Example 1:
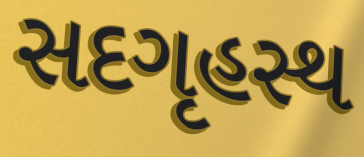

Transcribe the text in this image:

સદગૃહસ્થ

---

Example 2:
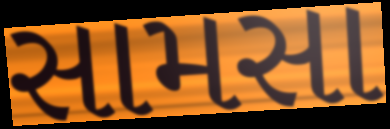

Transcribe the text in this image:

સામસા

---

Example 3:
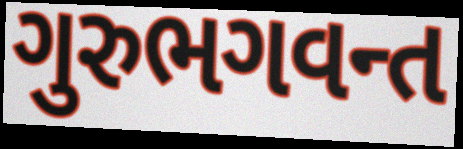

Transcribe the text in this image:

ગુરુભગવન્ત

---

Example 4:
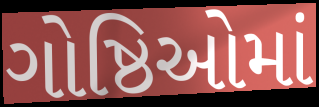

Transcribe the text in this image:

ગોષ્ઠિઓમાં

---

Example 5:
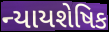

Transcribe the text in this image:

ન્યાયશેષિક